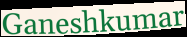
Ganeshkumar